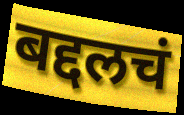
बद्दलचं